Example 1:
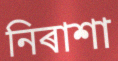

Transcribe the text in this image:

নিৰাশা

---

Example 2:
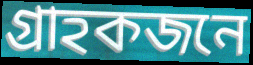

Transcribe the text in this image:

গ্ৰাহকজনে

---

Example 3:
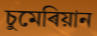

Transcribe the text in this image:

চুমেৰিয়ান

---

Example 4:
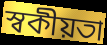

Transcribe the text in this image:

স্বকীয়তা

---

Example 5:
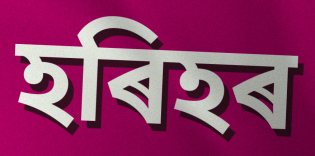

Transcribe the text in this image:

হৰিহৰ